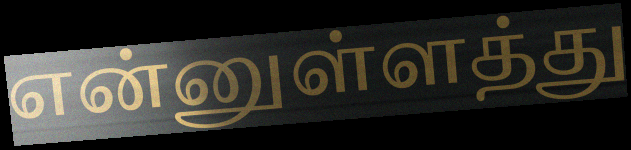
என்னுள்ளத்து